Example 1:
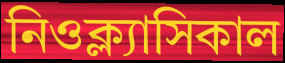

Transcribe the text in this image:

নিওক্ল্যাসিকাল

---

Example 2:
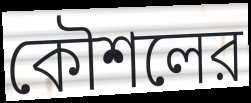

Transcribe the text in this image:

কৌশলের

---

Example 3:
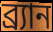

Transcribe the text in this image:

ব্র্যান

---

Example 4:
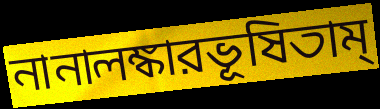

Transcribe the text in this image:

নানালঙ্কারভূষিতাম্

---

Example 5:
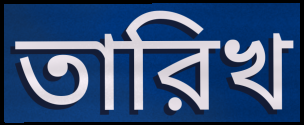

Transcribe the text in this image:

তারিখ